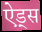
ऐड्स